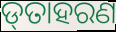
ଡ୍‌ତାହରଣ